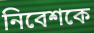
নিবেশকে